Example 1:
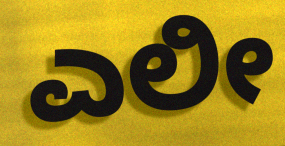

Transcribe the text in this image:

ಎಲೀ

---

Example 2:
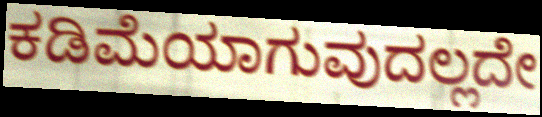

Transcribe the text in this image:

ಕಡಿಮೆಯಾಗುವುದಲ್ಲದೇ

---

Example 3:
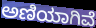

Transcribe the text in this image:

ಅಣಿಯಾಗಿವೆ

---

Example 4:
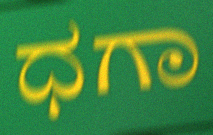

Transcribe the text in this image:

ಧಗಾ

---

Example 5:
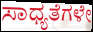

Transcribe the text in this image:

ಸಾಧ್ಯತೆಗಳೇ